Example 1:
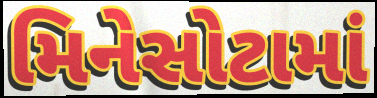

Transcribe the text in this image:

મિનેસોટામાં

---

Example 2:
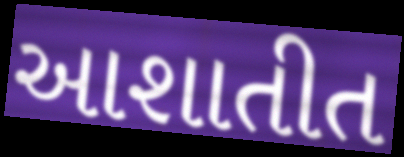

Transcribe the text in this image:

આશાતીત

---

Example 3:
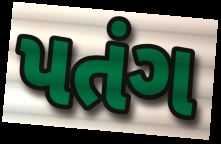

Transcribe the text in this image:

પતંગ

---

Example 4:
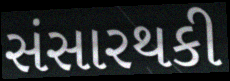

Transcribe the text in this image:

સંસારથકી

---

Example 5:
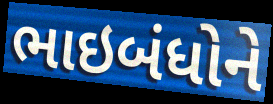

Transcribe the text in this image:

ભાઇબંધોને